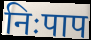
निःपाप